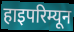
हाइपरिम्यून